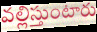
వల్లిస్తుంటారు